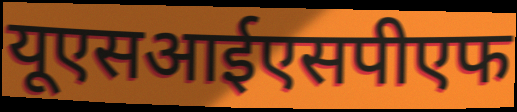
यूएसआईएसपीएफ